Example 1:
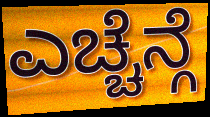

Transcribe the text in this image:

ಎಚ್ಚೆನ್ಗೆ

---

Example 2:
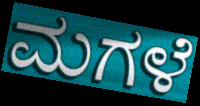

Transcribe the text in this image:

ಮಗಳೆ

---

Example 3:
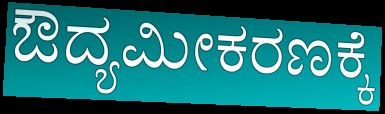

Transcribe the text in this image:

ಔದ್ಯಮೀಕರಣಕ್ಕೆ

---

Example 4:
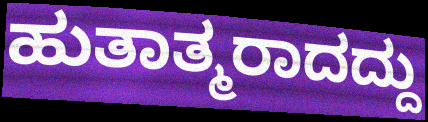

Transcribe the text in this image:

ಹುತಾತ್ಮರಾದದ್ದು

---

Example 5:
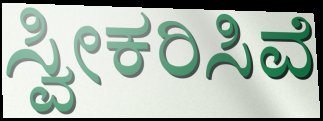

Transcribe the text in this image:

ಸ್ವೀಕರಿಸಿವೆ